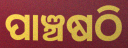
ପାଞ୍ଚଷଠି